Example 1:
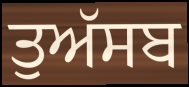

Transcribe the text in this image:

ਤੁਅੱਸਬ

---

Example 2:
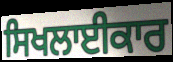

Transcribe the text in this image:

ਸਿਖਲਾਈਕਾਰ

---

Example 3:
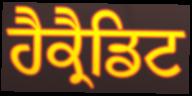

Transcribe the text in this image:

ਹੈਕ੍ਰੈਡਿਟ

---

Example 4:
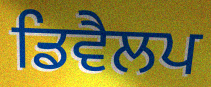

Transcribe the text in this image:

ਡਿਵੈਲਪ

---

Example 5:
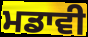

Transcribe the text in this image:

ਮਡਾਵੀ